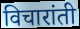
विचारांती